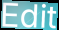
Edit